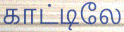
காட்டிலே